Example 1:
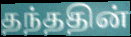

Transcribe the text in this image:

தந்ததின்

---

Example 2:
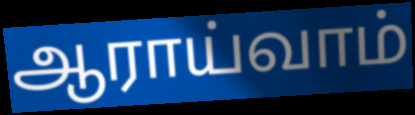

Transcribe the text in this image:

ஆராய்வாம்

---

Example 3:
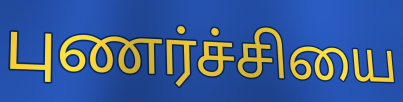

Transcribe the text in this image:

புணர்ச்சியை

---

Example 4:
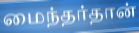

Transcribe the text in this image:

மைந்தர்தான்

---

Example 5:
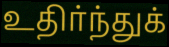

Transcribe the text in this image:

உதிர்ந்துக்